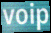
voip